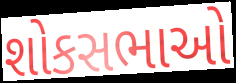
શોકસભાઓ